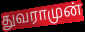
துவராமுன்